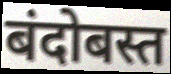
बंदोबस्त